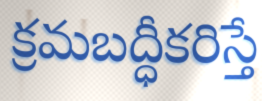
క్రమబద్ధీకరిస్తే